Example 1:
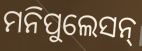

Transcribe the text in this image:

ମନିପୁଲେସନ୍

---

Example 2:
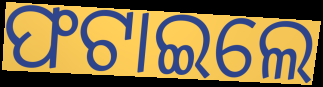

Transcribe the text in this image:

ଫଟାଇଲେ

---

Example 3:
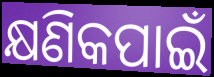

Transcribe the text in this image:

କ୍ଷଣିକପାଇଁ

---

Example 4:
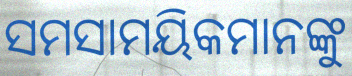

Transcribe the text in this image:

ସମସାମୟିକମାନଙ୍କୁ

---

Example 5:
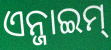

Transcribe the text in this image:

ଏନ୍ଜାଇମ୍